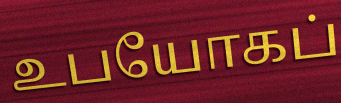
உபயோகப்